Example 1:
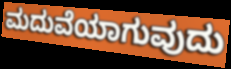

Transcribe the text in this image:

ಮದುವೆಯಾಗುವುದು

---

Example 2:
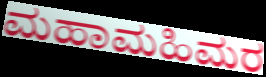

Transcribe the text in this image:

ಮಹಾಮಹಿಮರ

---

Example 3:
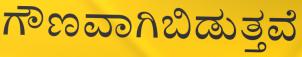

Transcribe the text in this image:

ಗೌಣವಾಗಿಬಿಡುತ್ತವೆ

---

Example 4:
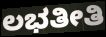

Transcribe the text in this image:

ಲಭತೀತಿ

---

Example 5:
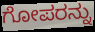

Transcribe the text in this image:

ಗೋಪರನ್ನು